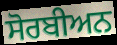
ਸੋਰਬੀਅਨ